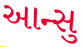
આન્સુ